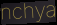
nchya